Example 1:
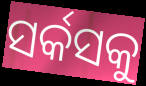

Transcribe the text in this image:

ସର୍କସକୁ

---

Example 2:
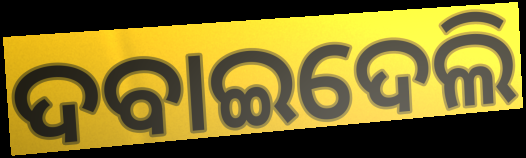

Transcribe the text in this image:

ଦବାଇଦେଲି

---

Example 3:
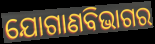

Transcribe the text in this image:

ଯୋଗାଣବିଭାଗର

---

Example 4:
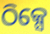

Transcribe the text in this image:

ଠିକ୍ସେ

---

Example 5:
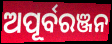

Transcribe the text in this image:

ଅପୂର୍ବରଞ୍ଜନ